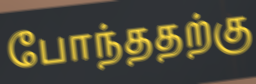
போந்ததற்கு